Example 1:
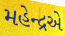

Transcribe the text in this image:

મહેન્દ્રએ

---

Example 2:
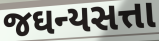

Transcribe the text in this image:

જઘન્યસત્તા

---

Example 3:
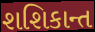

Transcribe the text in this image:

શશિકાન્ત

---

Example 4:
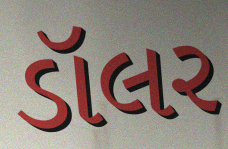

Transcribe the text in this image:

ડૉલર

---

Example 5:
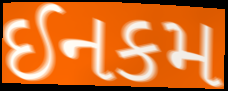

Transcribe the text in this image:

ઈનકમ